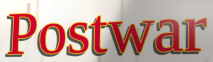
Postwar